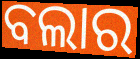
ବଲାର